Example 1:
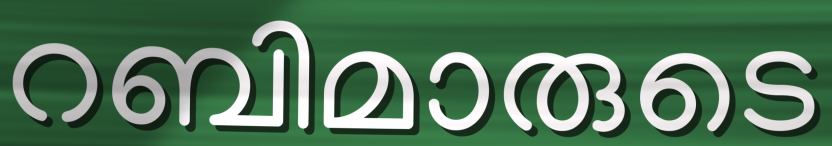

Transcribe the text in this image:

റബിമാരുടെ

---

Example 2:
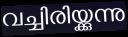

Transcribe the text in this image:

വച്ചിരിയ്ക്കുന്നു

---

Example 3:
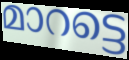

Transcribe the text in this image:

മാറട്ടെ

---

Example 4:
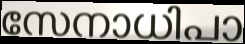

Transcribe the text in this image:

സേനാധിപാ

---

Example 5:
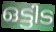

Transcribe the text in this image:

ഒട്ടിട